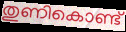
തുണികൊണ്ട്